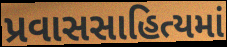
પ્રવાસસાહિત્યમાં